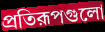
প্রতিরূপগুলো